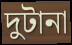
দুটানা